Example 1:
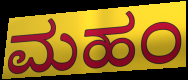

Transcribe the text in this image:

ಮಹಂ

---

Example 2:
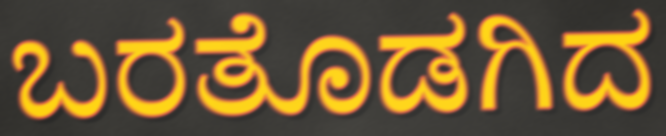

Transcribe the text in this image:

ಬರತೊಡಗಿದ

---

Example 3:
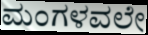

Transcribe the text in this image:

ಮಂಗಳವಲೇ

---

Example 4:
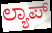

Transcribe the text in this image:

ಲ್ಯಾಪ್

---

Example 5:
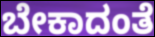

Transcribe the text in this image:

ಬೇಕಾದಂತೆ